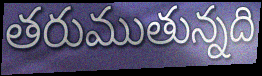
తరుముతున్నది